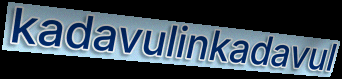
kadavulinkadavul